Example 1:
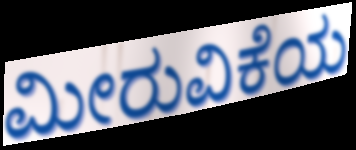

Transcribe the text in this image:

ಮೀರುವಿಕೆಯ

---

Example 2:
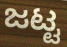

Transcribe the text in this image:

ಜಟ್ಟ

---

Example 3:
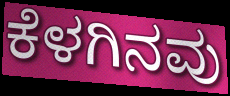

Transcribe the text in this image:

ಕೆಳಗಿನವು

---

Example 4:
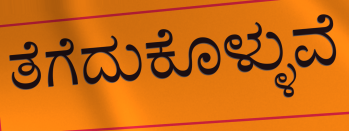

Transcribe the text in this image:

ತೆಗೆದುಕೊಳ್ಳುವೆ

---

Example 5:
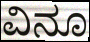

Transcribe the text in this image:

ವಿನೂ